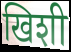
खिशी